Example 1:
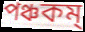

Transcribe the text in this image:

পঞ্চকম্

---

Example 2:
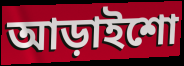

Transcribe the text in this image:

আড়াইশো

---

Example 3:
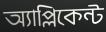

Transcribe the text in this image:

অ্যাপ্লিকেন্ট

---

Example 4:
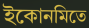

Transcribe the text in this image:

ইকোনমিতে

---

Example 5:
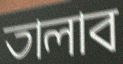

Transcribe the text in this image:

তালাব